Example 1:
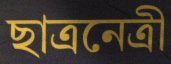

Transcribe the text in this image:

ছাত্রনেত্রী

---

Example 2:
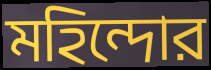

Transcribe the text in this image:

মহিন্দোর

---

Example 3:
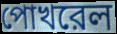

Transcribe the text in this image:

পোখরেল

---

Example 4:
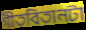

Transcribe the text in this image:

গীতবিতানটা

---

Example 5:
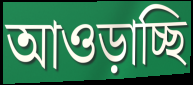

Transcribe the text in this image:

আওড়াচ্ছি